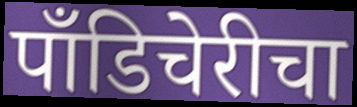
पाँडिचेरीचा